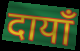
दायाँ